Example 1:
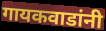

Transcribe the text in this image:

गायकवाडांनी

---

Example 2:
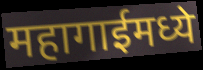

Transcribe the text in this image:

महागाईमध्ये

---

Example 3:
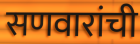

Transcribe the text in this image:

सणवारांची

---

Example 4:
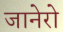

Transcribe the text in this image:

जानेरो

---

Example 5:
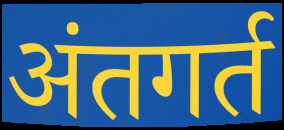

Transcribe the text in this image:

अंतगर्त